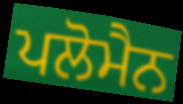
ਪਲੋਮੈਨ